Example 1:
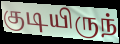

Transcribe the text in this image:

குடியிருந்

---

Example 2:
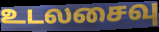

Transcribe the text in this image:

உடலசைவு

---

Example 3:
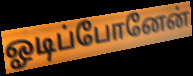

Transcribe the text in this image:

ஓடிப்போனேன்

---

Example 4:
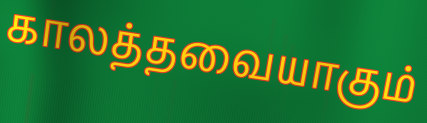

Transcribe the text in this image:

காலத்தவையாகும்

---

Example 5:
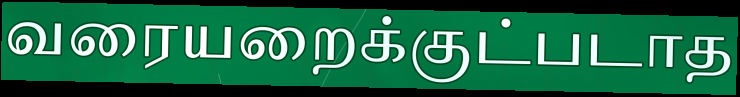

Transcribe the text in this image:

வரையறைக்குட்படாத